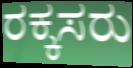
ರಕ್ಕಸರು